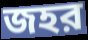
জহর